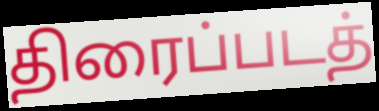
திரைப்படத்